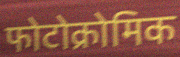
फोटोक्रोमिक